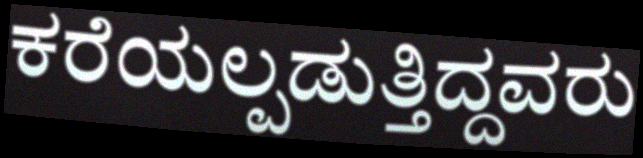
ಕರೆಯಲ್ಪಡುತ್ತಿದ್ದವರು